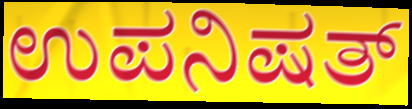
ಉಪನಿಷತ್